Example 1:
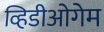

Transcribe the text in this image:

व्हिडीओगेम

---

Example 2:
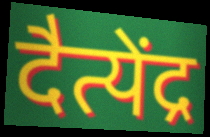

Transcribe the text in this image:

दैत्येंद्र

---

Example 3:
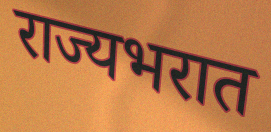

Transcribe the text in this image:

राज्यभरात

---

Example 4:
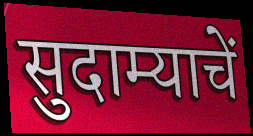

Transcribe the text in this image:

सुदाम्याचें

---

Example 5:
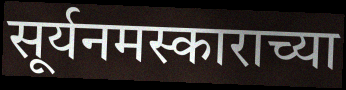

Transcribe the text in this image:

सूर्यनमस्काराच्या